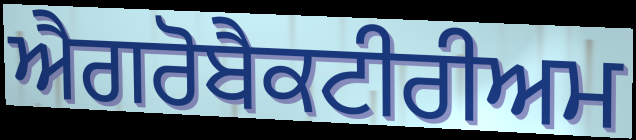
ਐਗਰੋਬੈਕਟੀਰੀਅਮ